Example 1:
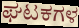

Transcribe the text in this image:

ಘಟಕಗಳ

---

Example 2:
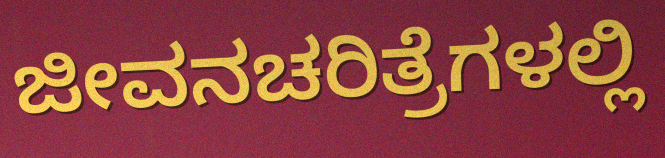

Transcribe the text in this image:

ಜೀವನಚರಿತ್ರೆಗಳಲ್ಲಿ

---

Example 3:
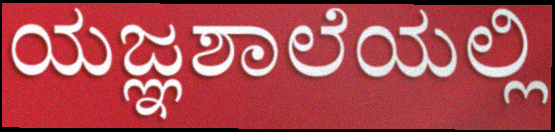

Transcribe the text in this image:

ಯಜ್ಞಶಾಲೆಯಲ್ಲಿ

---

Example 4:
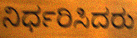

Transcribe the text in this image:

ನಿರ್ಧರಿಸಿದರು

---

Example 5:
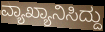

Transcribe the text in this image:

ವ್ಯಾಖ್ಯಾನಿಸಿದ್ದು